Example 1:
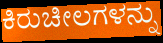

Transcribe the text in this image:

ಕಿರುಚೀಲಗಳನ್ನು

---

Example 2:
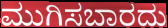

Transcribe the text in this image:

ಮುಗಿಸಬಾರದು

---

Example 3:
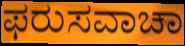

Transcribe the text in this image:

ಫರುಸವಾಚಾ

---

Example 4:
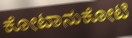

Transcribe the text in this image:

ಕೋಟಾನುಕೋಟಿ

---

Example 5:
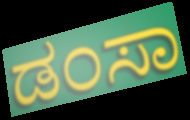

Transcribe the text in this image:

ಡಂಸಾ